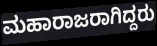
ಮಹಾರಾಜರಾಗಿದ್ದರು